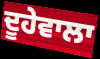
ਦੂਹੇਵਾਲਾ